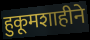
हुकूमशाहीने